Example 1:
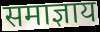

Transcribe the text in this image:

समाज्ञाय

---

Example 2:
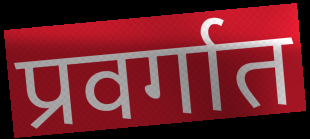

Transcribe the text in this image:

प्रवर्गात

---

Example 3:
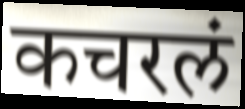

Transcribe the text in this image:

कचरलं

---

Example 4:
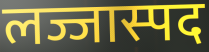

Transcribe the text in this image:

लज्जास्पद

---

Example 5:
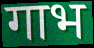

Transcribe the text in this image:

गाभ